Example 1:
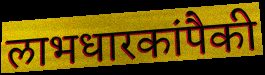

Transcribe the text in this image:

लाभधारकांपैकी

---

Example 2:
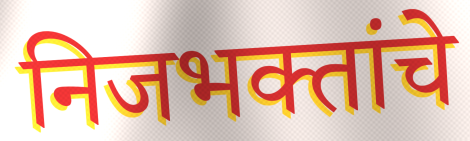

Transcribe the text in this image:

निजभक्तांचे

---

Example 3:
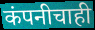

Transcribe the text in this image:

कंपनीचाही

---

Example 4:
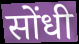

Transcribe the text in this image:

सोंधी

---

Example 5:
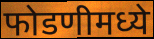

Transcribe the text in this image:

फोडणीमध्ये